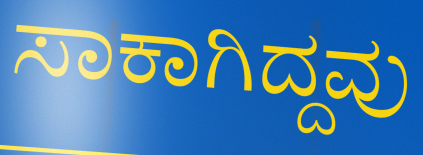
ಸಾಕಾಗಿದ್ದವು